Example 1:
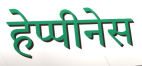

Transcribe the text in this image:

हेप्पीनेस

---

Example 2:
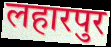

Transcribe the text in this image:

लहारपुर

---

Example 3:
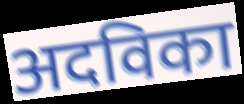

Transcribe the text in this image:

अदविका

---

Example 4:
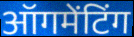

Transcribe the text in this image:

ऑगमेंटिंग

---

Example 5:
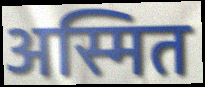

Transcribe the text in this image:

अस्मित